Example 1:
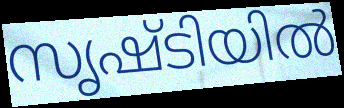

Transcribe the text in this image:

സൃഷ്ടിയിൽ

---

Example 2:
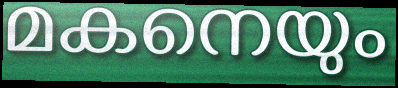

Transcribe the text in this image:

മകനെയും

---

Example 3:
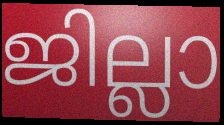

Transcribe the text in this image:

ജില്ലാ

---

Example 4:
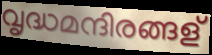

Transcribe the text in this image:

വൃദ്ധമന്ദിരങ്ങള്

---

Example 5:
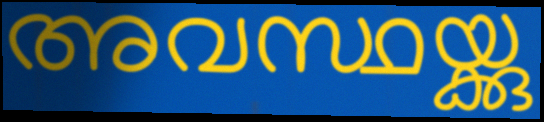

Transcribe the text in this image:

അവസ്ഥയ്ക്കു